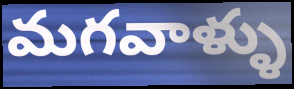
మగవాళ్ళు